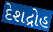
દેશદ્રોહ